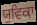
ਯੁਵਿਕਾ